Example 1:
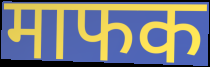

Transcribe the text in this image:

माफक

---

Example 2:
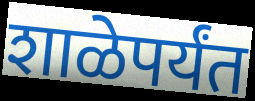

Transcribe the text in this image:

शाळेपर्यंत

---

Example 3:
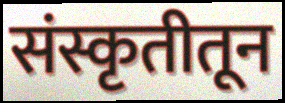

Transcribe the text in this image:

संस्कृतीतून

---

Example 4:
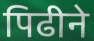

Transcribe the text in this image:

पिढीने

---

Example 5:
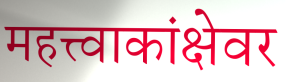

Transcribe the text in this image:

महत्त्वाकांक्षेवर